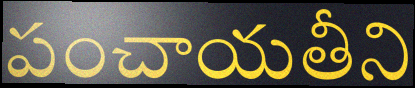
పంచాయతీని